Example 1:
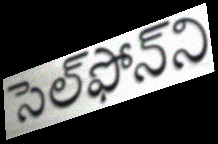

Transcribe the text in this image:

సెల్‌ఫోన్‌ని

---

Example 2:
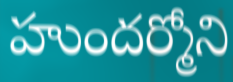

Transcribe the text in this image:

హుందర్మోని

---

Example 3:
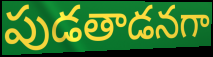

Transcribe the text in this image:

పుడతాడనగా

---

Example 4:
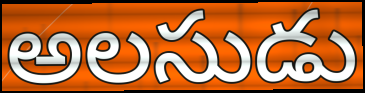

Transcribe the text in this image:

అలసుడు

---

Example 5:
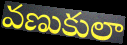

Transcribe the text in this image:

వణుకులా